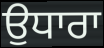
ਉਧਾਰਾ